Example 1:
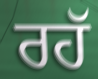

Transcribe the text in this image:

ਰਹੱ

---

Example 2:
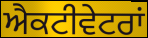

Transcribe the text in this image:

ਐਕਟੀਵੇਟਰਾਂ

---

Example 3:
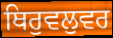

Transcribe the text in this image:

ਥਿਰੁਵਲੁਵਰ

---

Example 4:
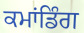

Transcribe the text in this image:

ਕਮਾਂਡਿੰਗ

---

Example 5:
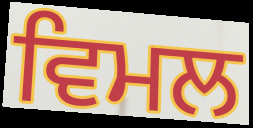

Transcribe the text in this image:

ਵਿਮਲ